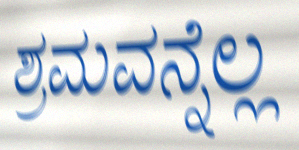
ಶ್ರಮವನ್ನೆಲ್ಲ